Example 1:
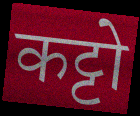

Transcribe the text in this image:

कट्टो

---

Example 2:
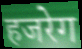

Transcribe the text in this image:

हजरेग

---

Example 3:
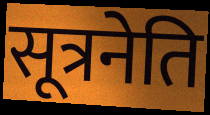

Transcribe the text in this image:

सूत्रनेति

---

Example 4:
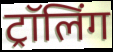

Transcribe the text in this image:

ट्रॉलिंग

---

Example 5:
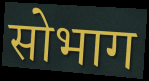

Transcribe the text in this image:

सोभाग